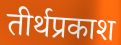
तीर्थप्रकाश